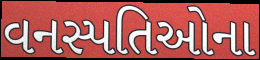
વનસ્પતિઓના